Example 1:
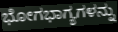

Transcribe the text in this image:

ಭೋಗಭಾಗ್ಯಗಳನ್ನು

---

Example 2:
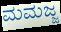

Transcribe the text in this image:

ಮಮಜ್ಜ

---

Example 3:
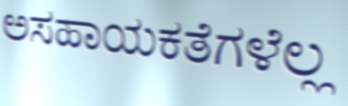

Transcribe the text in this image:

ಅಸಹಾಯಕತೆಗಳೆಲ್ಲ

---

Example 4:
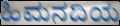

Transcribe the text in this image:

ಹಿಮನದಿಯ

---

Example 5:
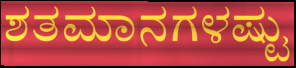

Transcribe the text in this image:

ಶತಮಾನಗಳಷ್ಟು